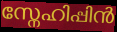
സ്നേഹിപ്പിൻ